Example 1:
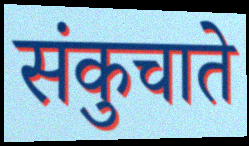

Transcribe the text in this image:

संकुचाते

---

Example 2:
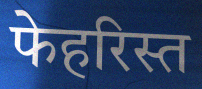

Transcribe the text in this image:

फेहरिस्त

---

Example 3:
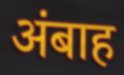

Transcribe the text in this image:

अंबाह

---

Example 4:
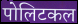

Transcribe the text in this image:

पोलिटकल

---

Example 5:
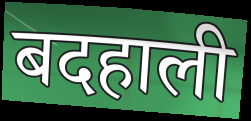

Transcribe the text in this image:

बदहाली